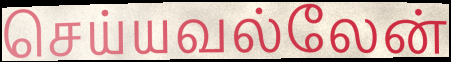
செய்யவல்லேன்